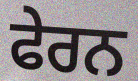
ਫੇਰਨ